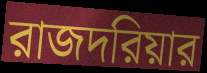
রাজদরিয়ার